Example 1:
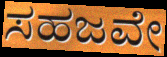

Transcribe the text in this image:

ಸಹಜವೇ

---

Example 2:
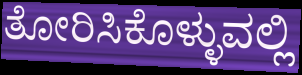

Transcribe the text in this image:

ತೋರಿಸಿಕೊಳ್ಳುವಲ್ಲಿ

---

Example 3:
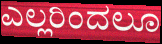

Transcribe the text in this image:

ಎಲ್ಲರಿಂದಲೂ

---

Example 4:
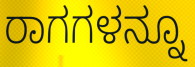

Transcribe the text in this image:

ರಾಗಗಳನ್ನೂ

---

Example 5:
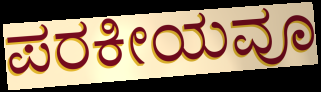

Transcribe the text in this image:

ಪರಕೀಯವೂ